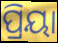
ପ୍ରିୟା